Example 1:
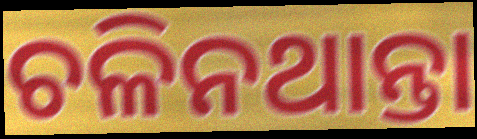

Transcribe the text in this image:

ଚଳିନଥାନ୍ତା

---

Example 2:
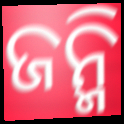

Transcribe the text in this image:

ଜନ୍ମି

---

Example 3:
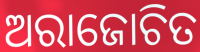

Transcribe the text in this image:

ଅରାଜୋଚିତ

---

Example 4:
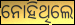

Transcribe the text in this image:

ନୋହିଥିଲେ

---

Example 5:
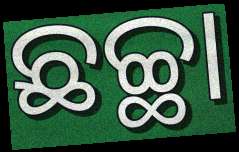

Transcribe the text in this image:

ଛଚ୍ଛା